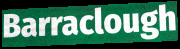
Barraclough